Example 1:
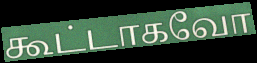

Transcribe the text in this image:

கூட்டாகவோ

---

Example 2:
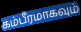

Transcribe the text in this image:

கம்பீரமாகவும்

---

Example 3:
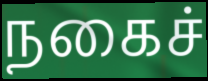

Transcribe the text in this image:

நகைச்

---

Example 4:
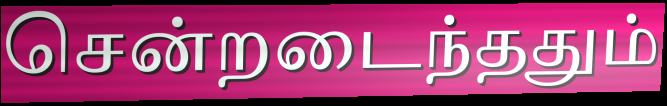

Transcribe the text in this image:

சென்றடைந்ததும்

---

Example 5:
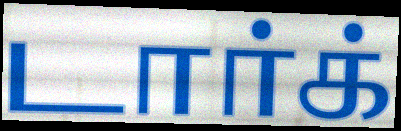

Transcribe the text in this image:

டார்க்